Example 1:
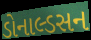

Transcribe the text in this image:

ડોનાલ્ડસન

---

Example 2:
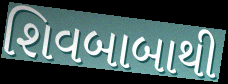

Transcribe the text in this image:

શિવબાબાથી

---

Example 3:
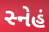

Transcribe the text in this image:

સ્નેહં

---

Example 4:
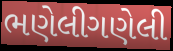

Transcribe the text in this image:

ભણેલીગણેલી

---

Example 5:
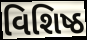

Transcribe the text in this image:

વિશિષ્ઠ